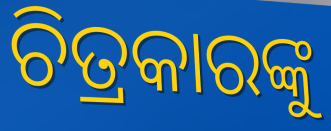
ଚିତ୍ରକାରଙ୍କୁ